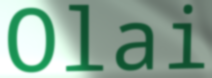
Olai